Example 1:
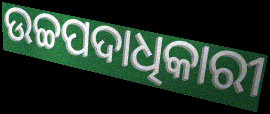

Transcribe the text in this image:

ଉଚ୍ଚପଦାଧିକାରୀ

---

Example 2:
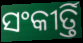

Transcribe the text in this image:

ସଂକୀର୍ତ୍ତି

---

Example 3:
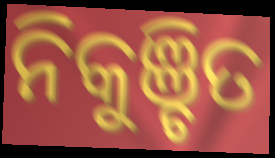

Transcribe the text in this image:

ନିକୁଞ୍ଚିତ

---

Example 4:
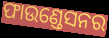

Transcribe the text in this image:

ଫାଉଣ୍ଡେସନର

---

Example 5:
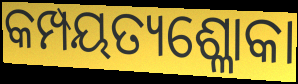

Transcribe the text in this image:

କମ୍ପୟତ୍ୟଶ୍ଳୋକା